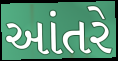
આંતરે